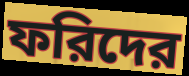
ফরিদের